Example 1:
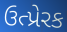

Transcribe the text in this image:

ઉત્પ્રેરક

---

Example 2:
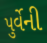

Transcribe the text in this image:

પુર્વેની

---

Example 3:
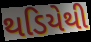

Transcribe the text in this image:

થડિયેથી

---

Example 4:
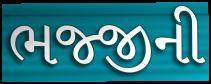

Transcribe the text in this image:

ભજ્જીની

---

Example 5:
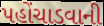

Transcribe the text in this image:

પહોંચાડવાની